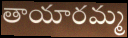
తాయారమ్మ